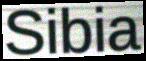
Sibia